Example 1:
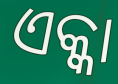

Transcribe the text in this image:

ଏକ୍କା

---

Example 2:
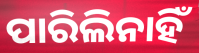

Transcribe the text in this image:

ପାରିଲିନାହିଁ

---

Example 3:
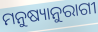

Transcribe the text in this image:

ମନୁଷ୍ୟାନୁରାଗୀ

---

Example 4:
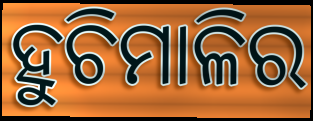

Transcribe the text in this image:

ହୁଚିମାଳିର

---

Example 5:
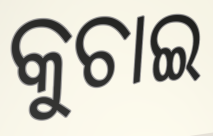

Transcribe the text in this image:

କୁଚାଇ